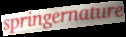
springernature